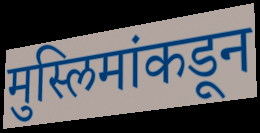
मुस्लिमांकडून